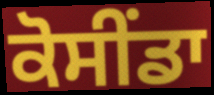
ਕੋਸੀਂਡਾ